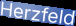
Herzfeld